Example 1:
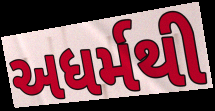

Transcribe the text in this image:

અધર્મથી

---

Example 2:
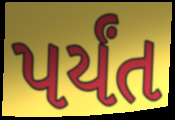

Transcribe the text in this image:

પર્યંત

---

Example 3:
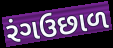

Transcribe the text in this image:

રંગઉછાળ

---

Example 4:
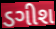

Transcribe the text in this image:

ડગીશ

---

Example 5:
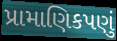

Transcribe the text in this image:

પ્રામાણિકપણું